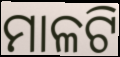
ମାଳଟି